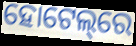
ହୋଟେଲ୍‌ରେ